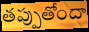
తప్పుతోందా